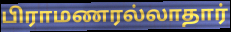
பிராமணரல்லாதார்